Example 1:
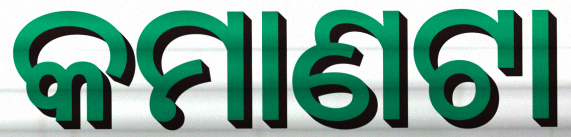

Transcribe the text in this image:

କମାଣଟା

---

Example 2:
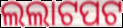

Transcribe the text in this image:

ଲଲାଟପଟ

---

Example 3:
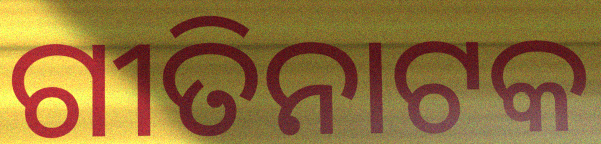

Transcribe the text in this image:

ଗୀତିନାଟକ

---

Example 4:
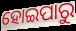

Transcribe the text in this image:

ହୋଇପାରୁ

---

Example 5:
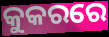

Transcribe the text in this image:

କୁକରରେ